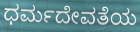
ಧರ್ಮದೇವತೆಯ